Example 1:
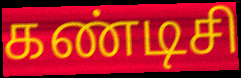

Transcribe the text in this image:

கண்டிசி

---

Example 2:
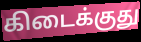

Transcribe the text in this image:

கிடைக்குது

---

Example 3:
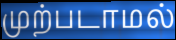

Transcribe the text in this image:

முற்படாமல்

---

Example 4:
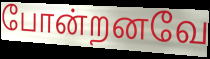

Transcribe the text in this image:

போன்றனவே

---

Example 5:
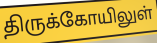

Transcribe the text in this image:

திருக்கோயிலுள்